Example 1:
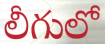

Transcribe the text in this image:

లీగులో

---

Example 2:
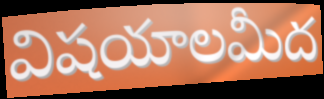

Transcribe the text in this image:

విషయాలమీద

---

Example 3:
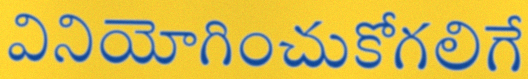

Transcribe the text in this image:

వినియోగించుకోగలిగే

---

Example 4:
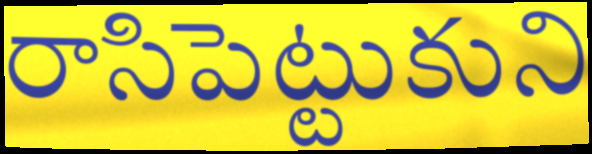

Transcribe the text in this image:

రాసిపెట్టుకుని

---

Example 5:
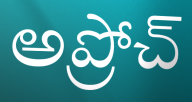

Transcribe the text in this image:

అప్రోచ్